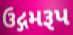
ઉદ્ગમરૂપ